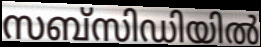
സബ്സിഡിയിൽ